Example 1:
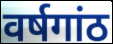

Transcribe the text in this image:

वर्षगांठ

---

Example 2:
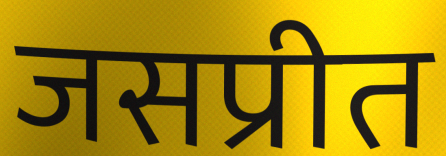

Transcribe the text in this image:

जसप्रीत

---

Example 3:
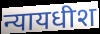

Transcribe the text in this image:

न्यायधीश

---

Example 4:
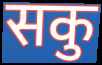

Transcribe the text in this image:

सकु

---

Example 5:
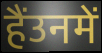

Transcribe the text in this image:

हैंउनमें